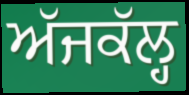
ਅੱਜਕੱਲ੍ਹ